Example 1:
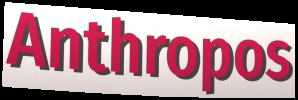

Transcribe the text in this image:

Anthropos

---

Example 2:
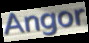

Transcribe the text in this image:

Angor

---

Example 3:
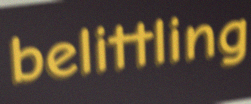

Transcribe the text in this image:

belittling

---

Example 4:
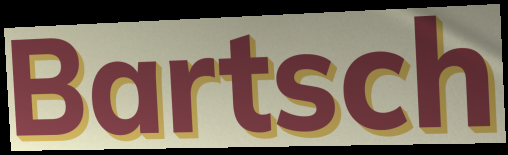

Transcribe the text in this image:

Bartsch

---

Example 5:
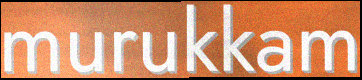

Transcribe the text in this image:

murukkam